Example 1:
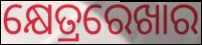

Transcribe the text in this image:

କ୍ଷେତ୍ରରେଖାର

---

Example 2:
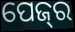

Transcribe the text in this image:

ପେଜ୍‌ର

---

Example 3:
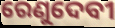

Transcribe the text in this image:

ରେଣୁଦେବୀ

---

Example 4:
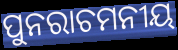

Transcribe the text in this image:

ପୁନରାଚମନୀୟ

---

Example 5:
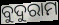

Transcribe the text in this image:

ବୁଦୁରାମ